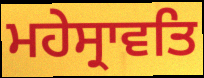
ਮਹੇਸ੍ਰਾਵਤਿ